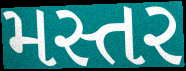
મસ્તર